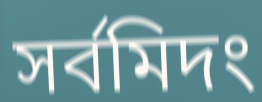
সর্বমিদং